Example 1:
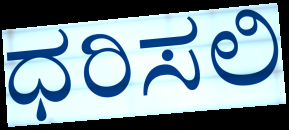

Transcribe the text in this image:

ಧರಿಸಲಿ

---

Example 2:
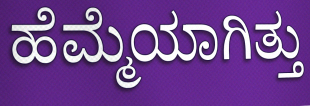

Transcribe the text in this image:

ಹೆಮ್ಮೆಯಾಗಿತ್ತು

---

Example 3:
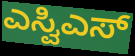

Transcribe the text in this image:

ಎಸ್ವಿಎಸ್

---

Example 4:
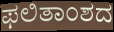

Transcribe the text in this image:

ಫಲಿತಾಂಶದ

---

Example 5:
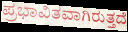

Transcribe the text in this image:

ಪ್ರಭಾವಿತವಾಗಿರುತ್ತದೆ